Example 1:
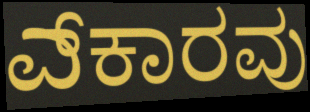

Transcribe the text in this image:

ಎ್‍ಕಾರವು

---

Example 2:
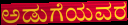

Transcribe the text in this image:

ಅಡುಗೆಯವರ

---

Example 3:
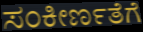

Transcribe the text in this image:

ಸಂಕೀರ್ಣತೆಗೆ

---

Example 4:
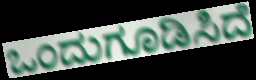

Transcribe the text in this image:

ಒಂದುಗೂಡಿಸಿದೆ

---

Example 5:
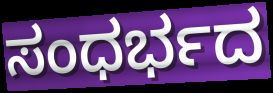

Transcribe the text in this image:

ಸಂಧರ್ಭದ